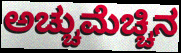
ಅಚ್ಚುಮೆಚ್ಚಿನ